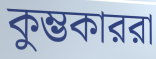
কুম্ভকাররা